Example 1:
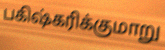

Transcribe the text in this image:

பகிஷ்கரிக்குமாறு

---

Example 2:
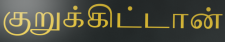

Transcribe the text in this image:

குறுக்கிட்டான்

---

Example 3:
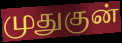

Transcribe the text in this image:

முதுகுன்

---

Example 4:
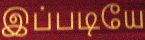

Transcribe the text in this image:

இப்படியே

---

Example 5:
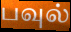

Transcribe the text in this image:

பவுல்